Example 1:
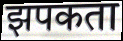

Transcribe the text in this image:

झपकता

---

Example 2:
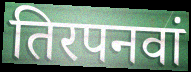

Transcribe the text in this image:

तिरपनवां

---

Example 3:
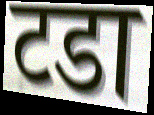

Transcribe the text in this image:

टडा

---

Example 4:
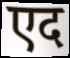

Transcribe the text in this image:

एद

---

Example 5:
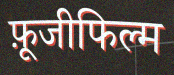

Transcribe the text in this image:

फ़ूजीफिल्म